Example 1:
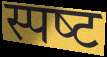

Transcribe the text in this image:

स्‍पष्‍ट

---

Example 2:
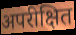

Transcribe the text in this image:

अपरीक्षित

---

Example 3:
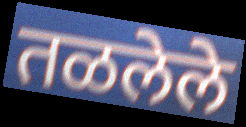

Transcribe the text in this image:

तळलेले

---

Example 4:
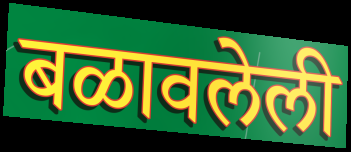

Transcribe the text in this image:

बळावलेली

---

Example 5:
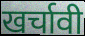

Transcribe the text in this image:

खर्चावी